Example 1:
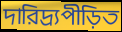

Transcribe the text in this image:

দারিদ্র্যপীড়িত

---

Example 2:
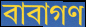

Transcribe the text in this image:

বাবাগণ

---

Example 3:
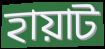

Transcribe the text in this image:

হায়াট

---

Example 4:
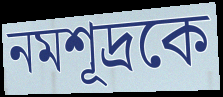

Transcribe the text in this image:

নমশূদ্রকে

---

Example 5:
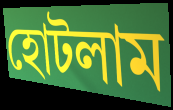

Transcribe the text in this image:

হোটলাম